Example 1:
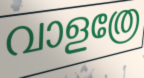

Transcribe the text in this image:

വാളത്രേ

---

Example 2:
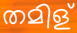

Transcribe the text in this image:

തമിള്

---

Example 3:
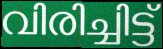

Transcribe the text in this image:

വിരിച്ചിട്ട്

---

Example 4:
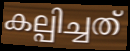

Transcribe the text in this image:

കല്പിച്ചത്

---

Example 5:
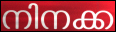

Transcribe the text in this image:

നിനക്ക